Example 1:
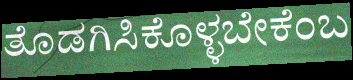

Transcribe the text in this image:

ತೊಡಗಿಸಿಕೊಳ್ಳಬೇಕೆಂಬ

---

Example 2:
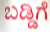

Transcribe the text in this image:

ಬಡ್ಡಿಗೆ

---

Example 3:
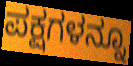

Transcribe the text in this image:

ಪಕ್ಷಗಳನ್ನೂ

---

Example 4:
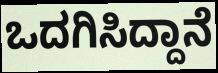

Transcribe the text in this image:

ಒದಗಿಸಿದ್ದಾನೆ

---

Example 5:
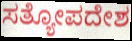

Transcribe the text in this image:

ಸತ್ಯೋಪದೇಶ